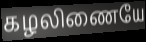
கழலிணையே